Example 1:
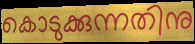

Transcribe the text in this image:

കൊടുക്കുന്നതിനു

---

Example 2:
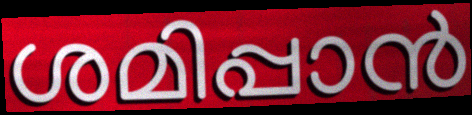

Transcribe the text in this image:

ശമിപ്പാൻ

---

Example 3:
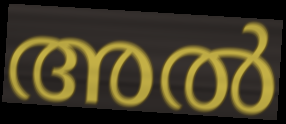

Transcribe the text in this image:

അൽ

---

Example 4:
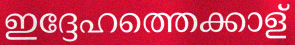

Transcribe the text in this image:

ഇദ്ദേഹത്തെക്കാള്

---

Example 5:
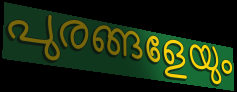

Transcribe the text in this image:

പുരങ്ങളേയും